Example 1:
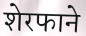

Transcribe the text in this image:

शेरफाने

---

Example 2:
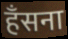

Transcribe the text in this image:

हँसना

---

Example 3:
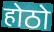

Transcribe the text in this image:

होठो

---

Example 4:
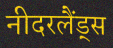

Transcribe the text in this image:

नीदरलैंड्स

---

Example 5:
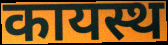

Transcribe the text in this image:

कायस्थ